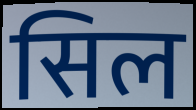
सिल